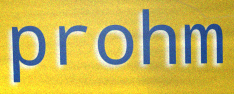
prohm